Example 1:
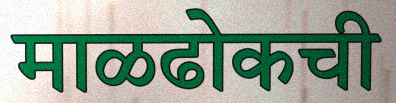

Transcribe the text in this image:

माळढोकची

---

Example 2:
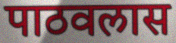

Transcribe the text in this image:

पाठवलास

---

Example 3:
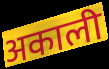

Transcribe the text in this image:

अकाली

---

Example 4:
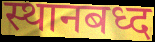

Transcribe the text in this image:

स्थानबध्द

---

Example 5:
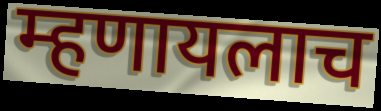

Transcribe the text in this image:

म्हणायलाच